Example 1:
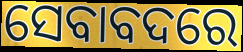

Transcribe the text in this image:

ସେବାବଦରେ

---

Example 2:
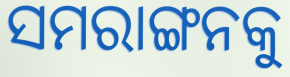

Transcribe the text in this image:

ସମରାଙ୍ଗନକୁ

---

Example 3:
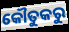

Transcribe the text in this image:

କୌତୁକରୁ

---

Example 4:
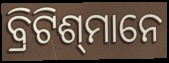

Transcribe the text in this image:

ବ୍ରିଟିଶ୍‍ମାନେ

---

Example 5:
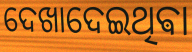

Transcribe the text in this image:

ଦେଖାଦେଇଥିଵା